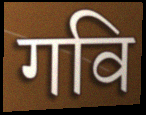
गवि